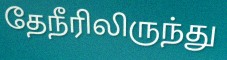
தேநீரிலிருந்து